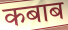
कबाब